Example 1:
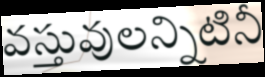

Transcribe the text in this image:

వస్తువులన్నిటినీ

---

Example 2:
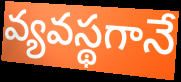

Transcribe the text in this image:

వ్యవస్థగానే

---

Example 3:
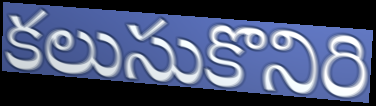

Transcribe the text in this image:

కలుసుకొనిరి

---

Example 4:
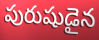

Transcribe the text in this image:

పురుషుడైన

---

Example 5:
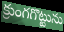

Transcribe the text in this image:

క్రుంగగొట్టును